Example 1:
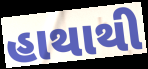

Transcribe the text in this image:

હાથાથી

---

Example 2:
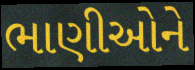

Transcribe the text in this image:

ભાણીઓને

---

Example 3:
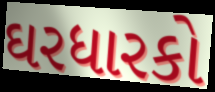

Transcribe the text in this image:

ઘરધારકો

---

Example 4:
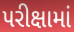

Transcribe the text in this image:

પરીક્ષામાં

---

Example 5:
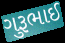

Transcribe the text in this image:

ગુરૂભાઈ